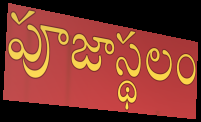
పూజాస్థలం